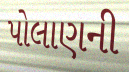
પોલાણની